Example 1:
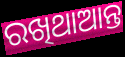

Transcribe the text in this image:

ରଖିଥାଆନ୍ତ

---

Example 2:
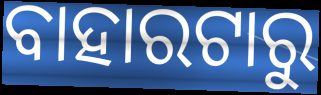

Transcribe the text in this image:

ବାହାରଟାରୁ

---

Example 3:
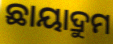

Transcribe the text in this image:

ଛାୟାଦ୍ରୁମ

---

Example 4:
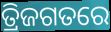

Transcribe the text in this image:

ତ୍ରିଜଗତରେ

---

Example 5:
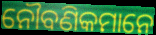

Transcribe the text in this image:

ନୌବଣିକମାନେ